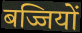
बज्जियों